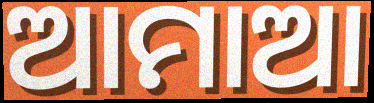
ଆମାଆ